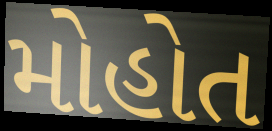
મોહોત